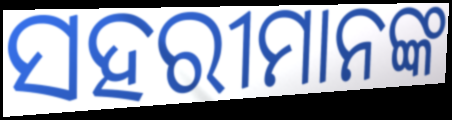
ସହରୀମାନଙ୍କ